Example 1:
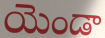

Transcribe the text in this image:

యెండా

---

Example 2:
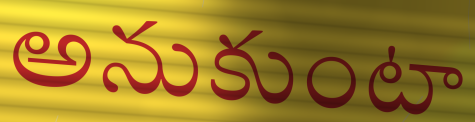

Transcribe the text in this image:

అనుకుంటా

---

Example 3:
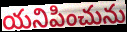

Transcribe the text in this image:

యనిపించును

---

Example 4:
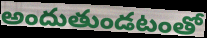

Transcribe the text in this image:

అందుతుండటంతో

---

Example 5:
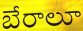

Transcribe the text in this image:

బేరాలూ